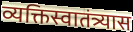
व्यक्तिस्वातंत्र्यास